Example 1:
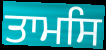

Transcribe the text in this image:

ਤਾਮਸਿ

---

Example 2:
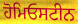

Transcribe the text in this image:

ਹੋਮਿਓਸਟੀਨ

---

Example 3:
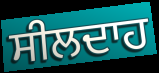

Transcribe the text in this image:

ਸੀਲਦਾਹ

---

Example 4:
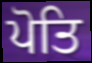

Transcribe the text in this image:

ਪੋਤਿ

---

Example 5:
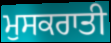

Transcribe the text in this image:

ਮੁਸਕਰਾਤੀ